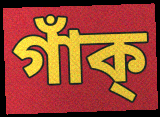
গাঁক্